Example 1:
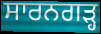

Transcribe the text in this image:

ਸਾਰਨਗੜ੍ਹ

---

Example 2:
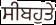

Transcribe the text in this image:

ਸੀਬਹੁਤੇ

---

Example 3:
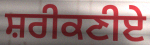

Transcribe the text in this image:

ਸ਼ਰੀਕਣੀਏ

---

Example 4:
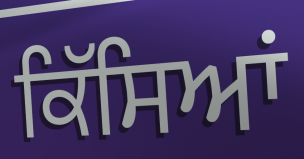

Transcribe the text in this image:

ਕਿੱਸਿਆਂ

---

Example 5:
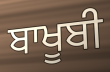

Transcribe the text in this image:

ਬਾਖੂਬੀ